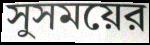
সুসময়ের